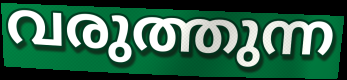
വരുത്തുന്ന